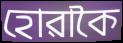
হোৱাকৈ